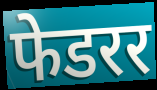
फेडरर